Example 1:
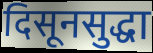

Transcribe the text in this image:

दिसूनसुद्धा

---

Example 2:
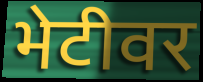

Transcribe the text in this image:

भेटीवर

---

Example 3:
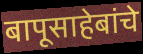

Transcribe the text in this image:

बापूसाहेबांचे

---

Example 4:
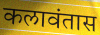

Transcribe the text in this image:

कलावंतास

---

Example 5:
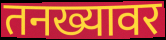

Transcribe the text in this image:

तनख्यावर